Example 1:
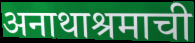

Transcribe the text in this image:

अनाथाश्रमाची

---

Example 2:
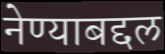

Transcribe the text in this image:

नेण्याबद्दल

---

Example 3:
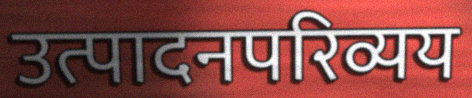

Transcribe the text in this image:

उत्पादनपरिव्यय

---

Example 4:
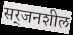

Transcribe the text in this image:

सर्जनशील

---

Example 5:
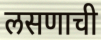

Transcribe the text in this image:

लसणाची